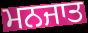
ਮਨਜਾਤ